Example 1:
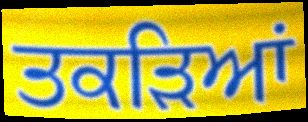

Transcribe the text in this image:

ਤਕੜਿਆਂ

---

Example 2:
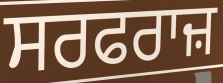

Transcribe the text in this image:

ਸਰਫਰਾਜ਼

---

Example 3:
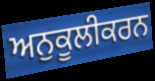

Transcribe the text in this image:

ਅਨੁਕੂਲੀਕਰਨ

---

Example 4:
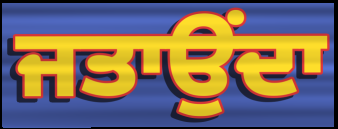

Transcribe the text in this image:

ਜਤਾਉਂਦਾ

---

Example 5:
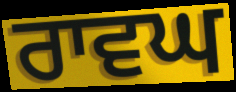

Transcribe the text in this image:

ਰਾਵਘ